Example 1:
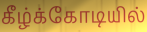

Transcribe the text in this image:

கீழ்க்கோடியில்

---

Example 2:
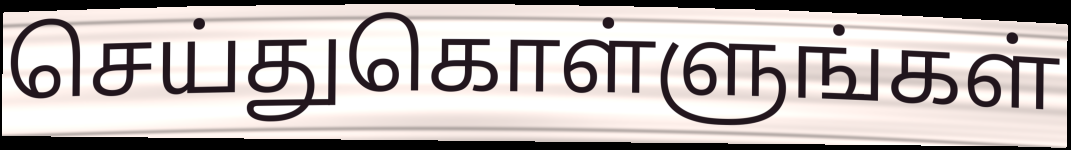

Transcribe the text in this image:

செய்துகொள்ளுங்கள்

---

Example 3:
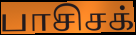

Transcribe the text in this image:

பாசிசக்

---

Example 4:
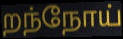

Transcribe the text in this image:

றந்நோய்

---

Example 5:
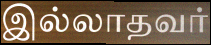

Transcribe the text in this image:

இல்லாதவர்